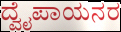
ದ್ವೈಪಾಯನರ